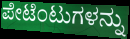
ಪೇಟೆಂಟುಗಳನ್ನು